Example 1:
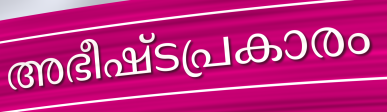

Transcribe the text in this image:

അഭീഷ്ടപ്രകാരം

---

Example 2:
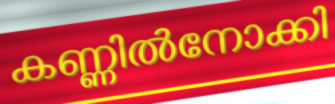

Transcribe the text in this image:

കണ്ണിൽനോക്കി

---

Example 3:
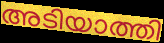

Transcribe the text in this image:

അടിയാത്തി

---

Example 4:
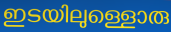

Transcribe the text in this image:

ഇടയിലുള്ളൊരു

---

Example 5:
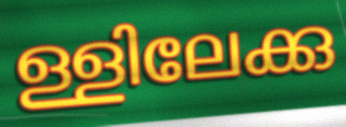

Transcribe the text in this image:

ള്ളിലേക്കു